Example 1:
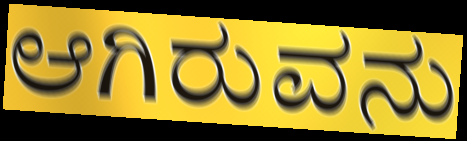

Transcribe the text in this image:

ಆಗಿರುವನು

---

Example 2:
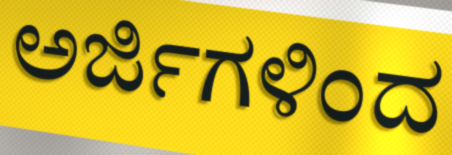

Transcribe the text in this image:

ಅರ್ಜಿಗಳಿಂದ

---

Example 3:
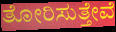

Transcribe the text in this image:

ತೋರಿಸುತ್ತೇವೆ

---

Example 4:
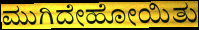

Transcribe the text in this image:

ಮುಗಿದೇಹೋಯಿತು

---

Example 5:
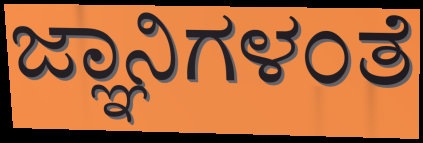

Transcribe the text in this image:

ಜ್ಞಾನಿಗಳಂತೆ